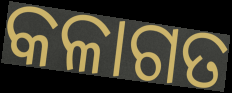
କଳାଗତ